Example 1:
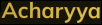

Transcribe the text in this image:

Acharyya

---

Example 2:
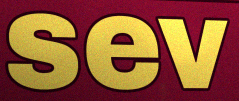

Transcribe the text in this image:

sev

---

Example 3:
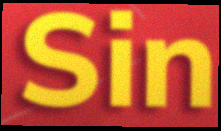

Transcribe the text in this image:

Sin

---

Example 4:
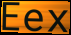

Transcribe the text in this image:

Eex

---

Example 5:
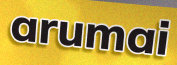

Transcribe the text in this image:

arumai